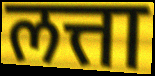
लत्ता